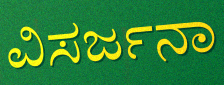
ವಿಸರ್ಜನಾ